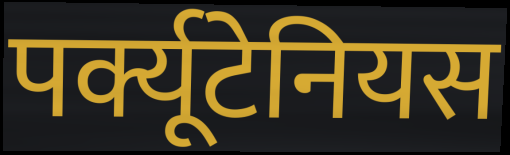
पर्क्यूटेनियस